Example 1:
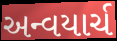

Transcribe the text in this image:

અન્વયાર્ચ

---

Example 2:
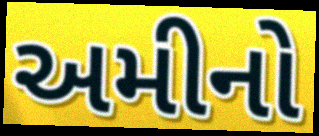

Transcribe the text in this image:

અમીનો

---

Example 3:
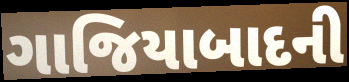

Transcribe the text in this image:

ગાજિયાબાદની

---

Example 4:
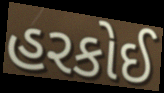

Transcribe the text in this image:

હરકોઈ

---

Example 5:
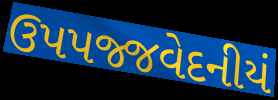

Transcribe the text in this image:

ઉપપજ્જવેદનીયં